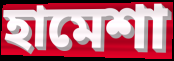
হামেশা